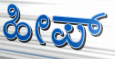
ಹೀಪ್